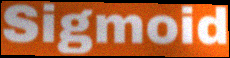
Sigmoid